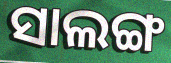
ସାଲଙ୍ଗ